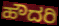
ಹೌದರಿ